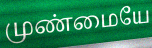
முண்மையே